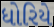
ધોરિયે